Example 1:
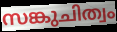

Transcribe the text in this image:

സങ്കുചിത്വം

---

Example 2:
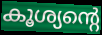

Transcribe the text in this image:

കൂശ്യന്റെ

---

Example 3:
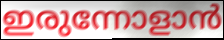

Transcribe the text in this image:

ഇരുന്നോളാൻ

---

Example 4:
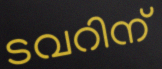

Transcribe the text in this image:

ടവറിന്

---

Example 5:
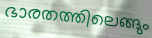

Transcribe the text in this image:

ഭാരതത്തിലെങ്ങും